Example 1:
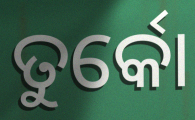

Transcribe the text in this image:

ତୁର୍କୋ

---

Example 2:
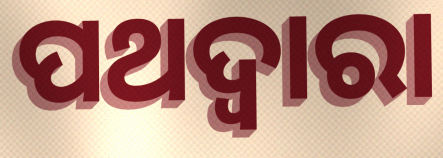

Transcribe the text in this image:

ପଥଦ୍ଵାରା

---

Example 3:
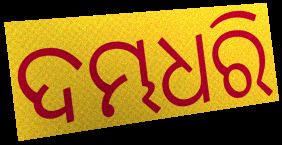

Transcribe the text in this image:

ଦମ୍ଭଧରି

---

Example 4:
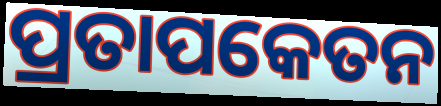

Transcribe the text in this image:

ପ୍ରତାପକେତନ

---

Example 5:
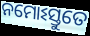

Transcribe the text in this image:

ନମୋଽସ୍ତୁତେ